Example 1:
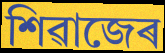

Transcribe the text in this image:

শিৱাজেৰ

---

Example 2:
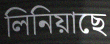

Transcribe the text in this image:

লিনিয়াছে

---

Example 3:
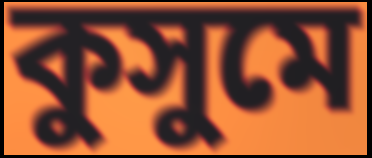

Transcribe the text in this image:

কুসুমে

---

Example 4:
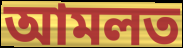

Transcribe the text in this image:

আমলত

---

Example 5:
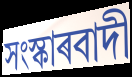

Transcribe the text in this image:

সংস্কাৰবাদী